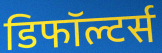
डिफॉल्टर्स